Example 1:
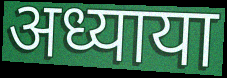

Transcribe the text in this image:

अध्याया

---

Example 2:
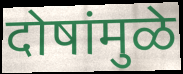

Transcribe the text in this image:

दोषांमुळे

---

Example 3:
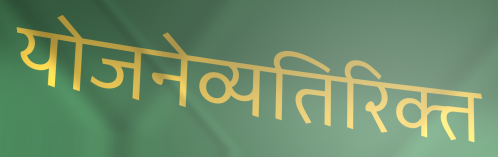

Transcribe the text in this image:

योजनेव्यतिरिक्त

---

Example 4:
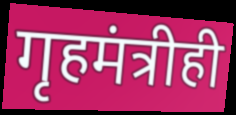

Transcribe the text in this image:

गृहमंत्रीही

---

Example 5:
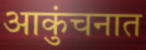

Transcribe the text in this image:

आकुंचनात